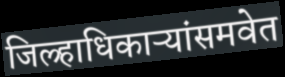
जिल्हाधिकाऱ्यांसमवेत